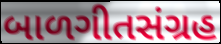
બાળગીતસંગ્રહ